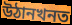
উঠানখনত